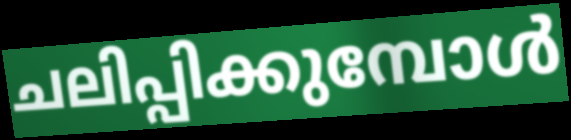
ചലിപ്പിക്കുമ്പോൾ